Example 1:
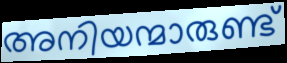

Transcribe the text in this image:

അനിയന്മാരുണ്ട്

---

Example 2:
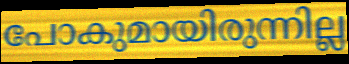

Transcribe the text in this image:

പോകുമായിരുന്നില്ല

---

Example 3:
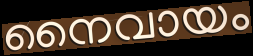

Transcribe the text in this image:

നൈവായം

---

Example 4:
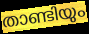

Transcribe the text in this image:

താണ്ടിയും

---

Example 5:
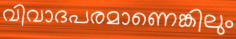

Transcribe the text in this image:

വിവാദപരമാണെങ്കിലും